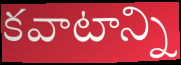
కవాటాన్ని